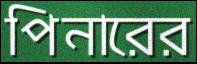
পিনারের